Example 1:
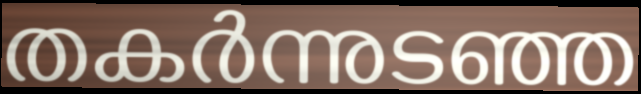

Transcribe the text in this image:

തകർന്നുടഞ്ഞ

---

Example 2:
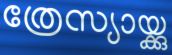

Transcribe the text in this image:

ത്രേസ്യായ്ക്കു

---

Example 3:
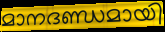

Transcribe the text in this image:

മാനദണ്ഡമായി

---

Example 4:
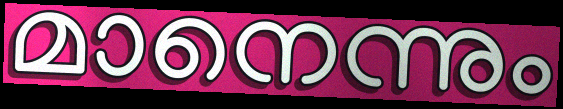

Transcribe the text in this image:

മാനെന്നും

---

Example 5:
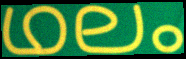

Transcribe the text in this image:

ഥലം